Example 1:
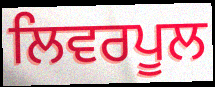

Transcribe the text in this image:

ਲਿਵਰਪੂਲ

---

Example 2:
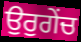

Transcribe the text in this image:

ਉਰੁਗੇਂਚ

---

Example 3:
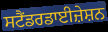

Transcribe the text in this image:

ਸਟੈਂਡਰਡਾਈਜ਼ੇਸ਼ਨ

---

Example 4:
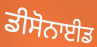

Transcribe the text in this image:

ਡੀਸੋਨਾਈਡ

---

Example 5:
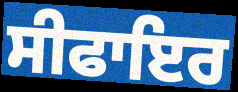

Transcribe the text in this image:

ਸੀਫਾਇਰ